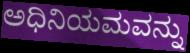
ಅಧಿನಿಯಮವನ್ನು